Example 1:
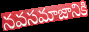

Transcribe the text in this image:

నవసమాజానికి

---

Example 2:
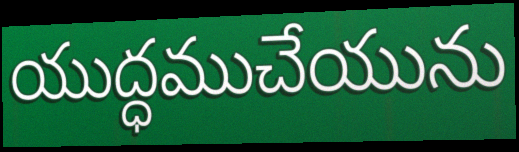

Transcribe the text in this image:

యుద్ధముచేయును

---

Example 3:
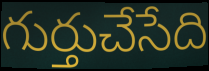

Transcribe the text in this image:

గుర్తుచేసేది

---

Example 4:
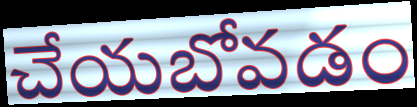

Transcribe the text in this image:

చేయబోవడం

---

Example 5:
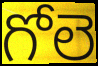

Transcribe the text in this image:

గోలె